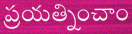
ప్రయత్నించాం